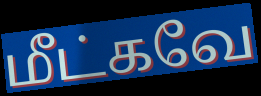
மீட்கவே